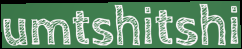
umtshitshi